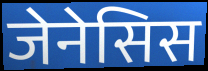
जेनेसिस